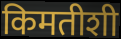
किमतीशी